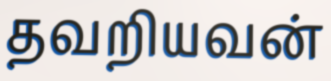
தவறியவன்